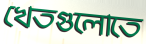
খেতগুলোতে